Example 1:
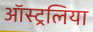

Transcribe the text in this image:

ऑस्ट्रलिया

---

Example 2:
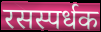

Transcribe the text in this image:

रसस्पर्धक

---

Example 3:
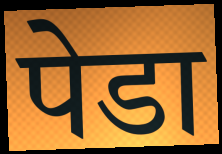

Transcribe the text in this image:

पेडा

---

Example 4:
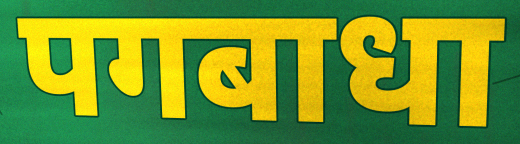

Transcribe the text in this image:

पगबाधा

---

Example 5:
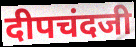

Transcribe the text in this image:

दीपचंदजी